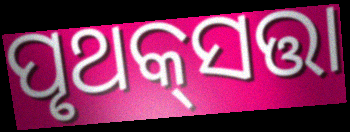
ପୃଥକ୍‌ସତ୍ତା